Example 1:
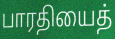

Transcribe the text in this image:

பாரதியைத்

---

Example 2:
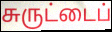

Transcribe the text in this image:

சுருட்டைப்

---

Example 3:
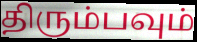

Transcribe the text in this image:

திரும்பவும்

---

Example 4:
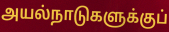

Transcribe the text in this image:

அயல்நாடுகளுக்குப்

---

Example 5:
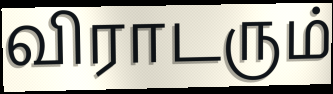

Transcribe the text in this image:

விராடரும்